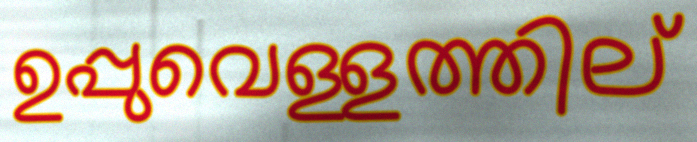
ഉപ്പുവെള്ളത്തില്